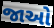
જાઓ